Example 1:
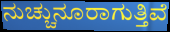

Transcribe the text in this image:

ನುಚ್ಚುನೂರಾಗುತ್ತಿವೆ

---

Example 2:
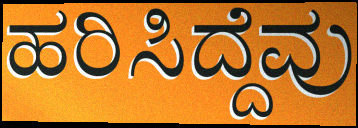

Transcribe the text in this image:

ಹರಿಸಿದ್ದೆವು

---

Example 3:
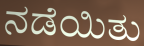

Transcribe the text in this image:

ನಡೆಯಿತು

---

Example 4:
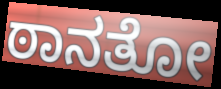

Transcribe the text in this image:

ಠಾನತೋ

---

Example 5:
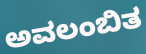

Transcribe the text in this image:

ಅವಲಂಬಿತ